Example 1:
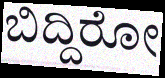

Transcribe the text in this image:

ಬಿದ್ದಿರೋ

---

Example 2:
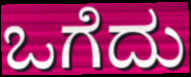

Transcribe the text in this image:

ಒಗೆದು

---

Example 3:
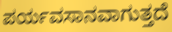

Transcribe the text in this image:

ಪರ್ಯವಸಾನವಾಗುತ್ತದೆ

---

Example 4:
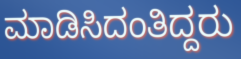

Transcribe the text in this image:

ಮಾಡಿಸಿದಂತಿದ್ದರು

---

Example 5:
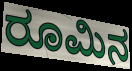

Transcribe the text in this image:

ರೂಮಿನ